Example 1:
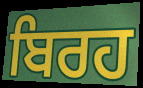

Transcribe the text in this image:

ਬਿਰਹ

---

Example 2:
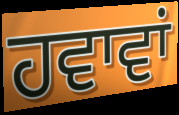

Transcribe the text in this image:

ਹਵਾਵਾਂ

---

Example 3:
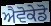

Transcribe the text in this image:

ਐਵੋਕੇਡੋ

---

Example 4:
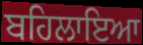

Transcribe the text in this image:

ਬਹਿਲਾਇਆ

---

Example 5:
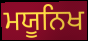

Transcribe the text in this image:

ਮਯੂਨਿਖ